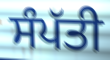
ਸੰਪੱਤੀ